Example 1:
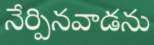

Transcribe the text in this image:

నేర్పినవాడను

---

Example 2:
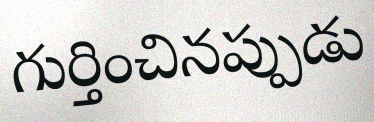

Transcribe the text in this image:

గుర్తించినప్పుడు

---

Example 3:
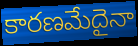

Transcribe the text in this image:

కారణమేదైనా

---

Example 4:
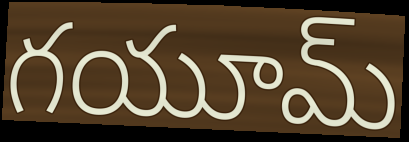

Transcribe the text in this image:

గయూమ్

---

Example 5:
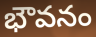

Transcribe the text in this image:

భౌవనం